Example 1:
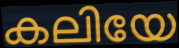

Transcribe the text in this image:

കലിയേ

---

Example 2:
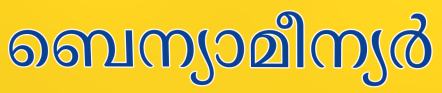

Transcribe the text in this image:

ബെന്യാമീന്യർ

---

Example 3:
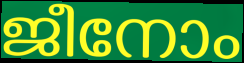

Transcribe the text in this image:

ജീനോം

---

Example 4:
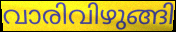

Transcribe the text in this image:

വാരിവിഴുങ്ങി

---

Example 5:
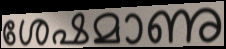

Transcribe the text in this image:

ശേഷമാണു